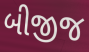
બીજીજ